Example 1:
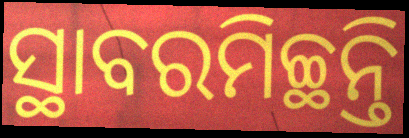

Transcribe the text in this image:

ସ୍ଥାବରମିଚ୍ଛନ୍ତି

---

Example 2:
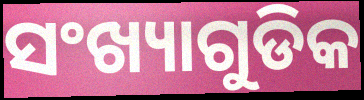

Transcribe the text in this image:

ସଂଖ୍ୟାଗୁଡିକ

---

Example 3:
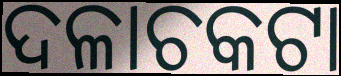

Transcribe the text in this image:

ଦଳାଚକଟା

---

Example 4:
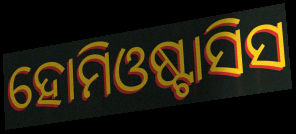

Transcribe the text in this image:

ହୋମିଓଷ୍ଟାସିସ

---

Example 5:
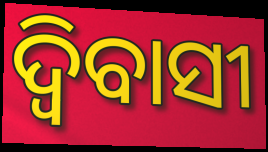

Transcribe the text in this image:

ଦ୍ବିବାସୀ